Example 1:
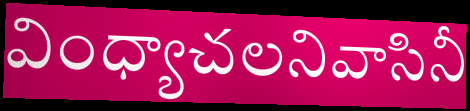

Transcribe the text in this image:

వింధ్యాచలనివాసినీ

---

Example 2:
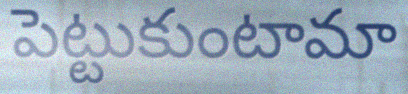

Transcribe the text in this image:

పెట్టుకుంటామా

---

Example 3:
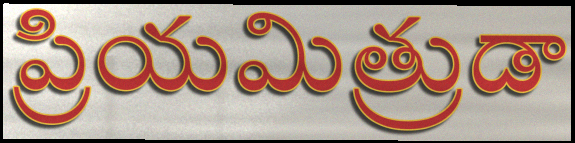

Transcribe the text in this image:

ప్రియమిత్రుడా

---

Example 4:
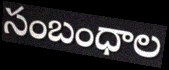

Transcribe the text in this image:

సంబంధాల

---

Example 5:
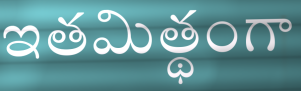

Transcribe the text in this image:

ఇతమిత్థంగా